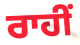
ਰਾਹੀਂ